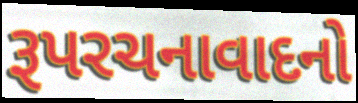
રૂપરચનાવાદનો